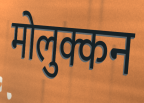
मोलुक्कन